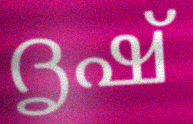
ദൃഷ്